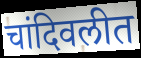
चांदिवलीत